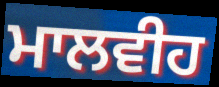
ਮਾਲਵੀਹ